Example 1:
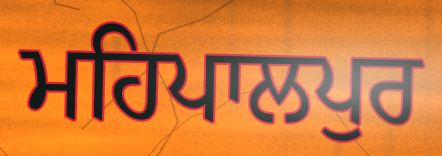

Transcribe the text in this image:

ਮਹਿਪਾਲਪੁਰ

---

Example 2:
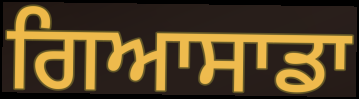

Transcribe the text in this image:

ਗਿਆਸਾਡਾ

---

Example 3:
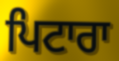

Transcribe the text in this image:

ਪਿਟਾਰਾ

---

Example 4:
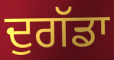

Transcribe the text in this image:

ਦੁਗੱਡਾ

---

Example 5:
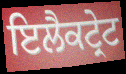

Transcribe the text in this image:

ਇਲੈਕਟ੍ਰੇਟ